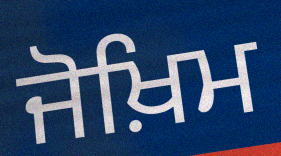
ਜੋਖ਼ਿਮ